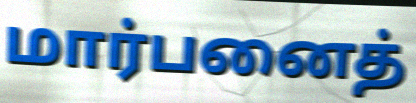
மார்பனைத்